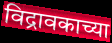
विद्रावकाच्या